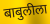
बाबुलीला